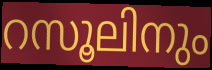
റസൂലിനും